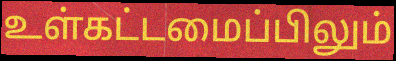
உள்கட்டமைப்பிலும்